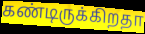
கண்டிருக்கிறதா